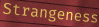
Strangeness